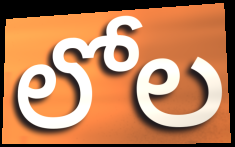
లోల